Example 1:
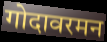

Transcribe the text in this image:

गोदावरमन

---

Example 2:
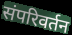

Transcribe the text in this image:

संपरिवर्तन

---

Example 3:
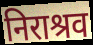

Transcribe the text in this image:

निराश्रव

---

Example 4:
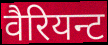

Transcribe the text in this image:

वैरियन्ट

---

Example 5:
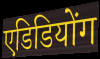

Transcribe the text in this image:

एडिडियोंग